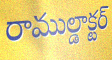
రాముల్డాక్టర్